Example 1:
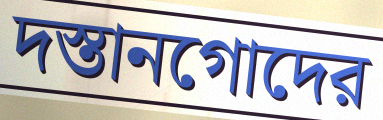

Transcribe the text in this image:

দস্তানগোদের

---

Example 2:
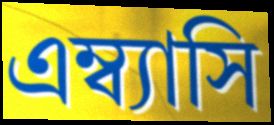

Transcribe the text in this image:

এম্ব্যাসি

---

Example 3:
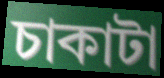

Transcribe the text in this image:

চাকাটা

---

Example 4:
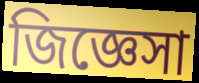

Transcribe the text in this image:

জিজ্ঞেসা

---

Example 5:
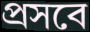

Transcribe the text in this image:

প্রসবে